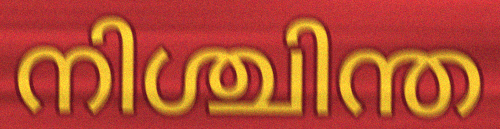
നിശ്ചിന്ത